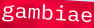
gambiae